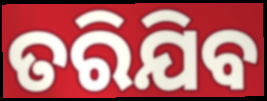
ତରିଯିବ